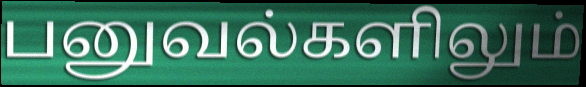
பனுவல்களிலும்